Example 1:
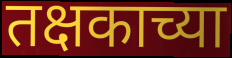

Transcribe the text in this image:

तक्षकाच्या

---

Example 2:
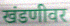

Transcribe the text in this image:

खंडणीवर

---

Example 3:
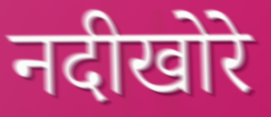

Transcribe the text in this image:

नदीखोरे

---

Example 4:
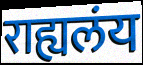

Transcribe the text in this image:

राह्यलंय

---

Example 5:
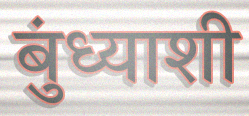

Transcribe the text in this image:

बुंध्याशी